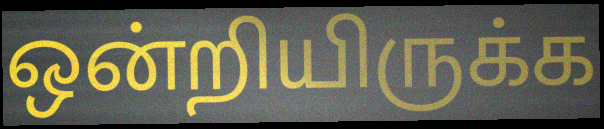
ஒன்றியிருக்க